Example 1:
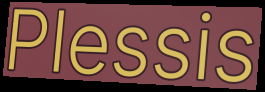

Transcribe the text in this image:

Plessis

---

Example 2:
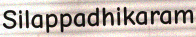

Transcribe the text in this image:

Silappadhikaram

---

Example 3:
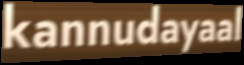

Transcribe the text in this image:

kannudayaal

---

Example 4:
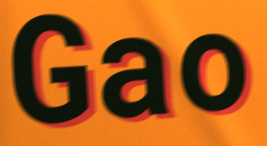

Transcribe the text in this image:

Gao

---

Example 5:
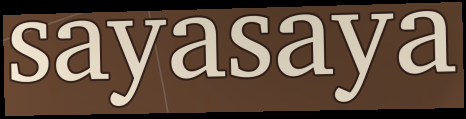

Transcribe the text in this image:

sayasaya